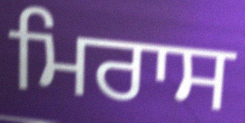
ਮਿਰਾਸ